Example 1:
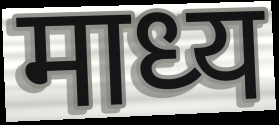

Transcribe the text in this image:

माध्‍य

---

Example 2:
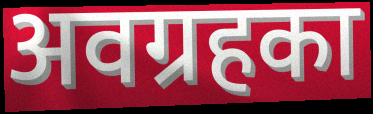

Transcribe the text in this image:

अवग्रहका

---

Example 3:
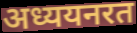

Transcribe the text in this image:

अध्ययनरत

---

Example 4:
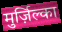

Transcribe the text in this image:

मुर्ज़िल्का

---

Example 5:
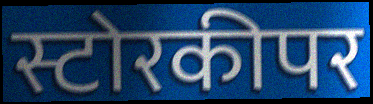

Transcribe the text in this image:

स्टोरकीपर